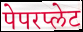
पेपरप्लेट